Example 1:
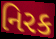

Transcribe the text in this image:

નિરક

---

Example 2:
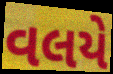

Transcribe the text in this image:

વલયે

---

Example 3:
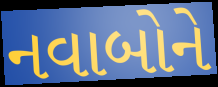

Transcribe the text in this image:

નવાબોને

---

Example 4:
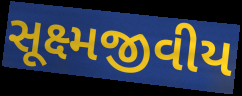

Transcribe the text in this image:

સૂક્ષ્મજીવીય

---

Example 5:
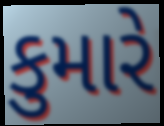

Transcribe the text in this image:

કુમારે